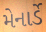
મેનાર્ડે